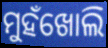
ମୁହଁଖୋଲି